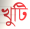
খুটি